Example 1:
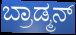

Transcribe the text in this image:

ಬ್ರಾಡ್ಮನ್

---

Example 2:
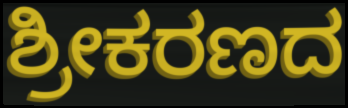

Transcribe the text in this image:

ಶ್ರೀಕರಣದ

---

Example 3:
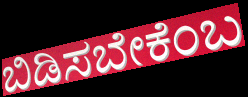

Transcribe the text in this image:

ಬಿಡಿಸಬೇಕೆಂಬ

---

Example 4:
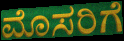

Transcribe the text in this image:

ಮೊಸರಿಗೆ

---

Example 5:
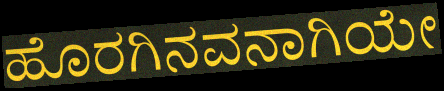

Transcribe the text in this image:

ಹೊರಗಿನವನಾಗಿಯೇ